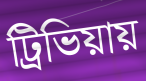
ট্রিভিয়ায়